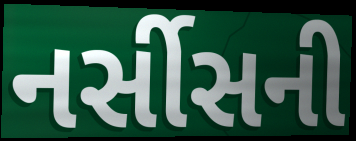
નર્સીસની